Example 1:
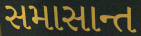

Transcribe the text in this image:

સમાસાન્ત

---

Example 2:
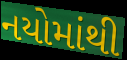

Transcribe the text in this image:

નયોમાંથી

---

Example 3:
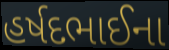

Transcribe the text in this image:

હર્ષદભાઈના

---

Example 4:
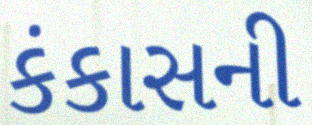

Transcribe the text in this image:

કંકાસની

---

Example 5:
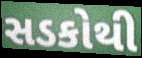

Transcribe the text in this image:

સડકોથી